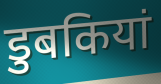
डुबकियां